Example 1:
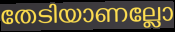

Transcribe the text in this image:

തേടിയാണല്ലോ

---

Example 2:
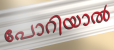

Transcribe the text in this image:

പോറിയാൽ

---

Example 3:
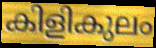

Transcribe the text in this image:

കിളികുലം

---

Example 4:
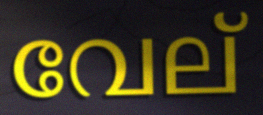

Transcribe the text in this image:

വേല്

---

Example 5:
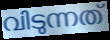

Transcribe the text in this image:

വിടുന്നത്